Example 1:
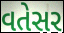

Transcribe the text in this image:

વતેસર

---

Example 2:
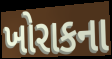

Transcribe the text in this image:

ખોરાકના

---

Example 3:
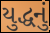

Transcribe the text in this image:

યુદ્ધનું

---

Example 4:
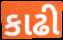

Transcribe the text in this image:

કાઢી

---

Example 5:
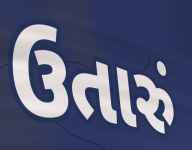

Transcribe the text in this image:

ઉતારું